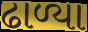
ઢાળ્યા